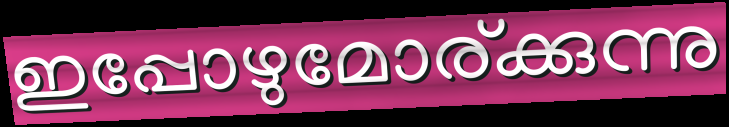
ഇപ്പോഴുമോര്ക്കുന്നു